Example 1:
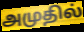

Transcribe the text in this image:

அமுதில்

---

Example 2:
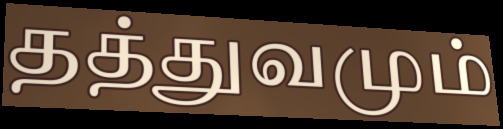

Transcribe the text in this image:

தத்துவமும்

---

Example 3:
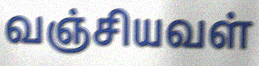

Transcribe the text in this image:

வஞ்சியவள்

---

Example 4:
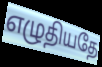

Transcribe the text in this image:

எழுதியதே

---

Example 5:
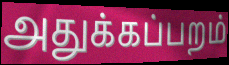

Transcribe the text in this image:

அதுக்கப்பறம்